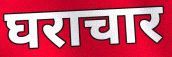
घराचार